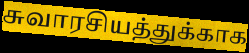
சுவாரசியத்துக்காக